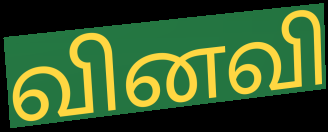
வினவி